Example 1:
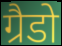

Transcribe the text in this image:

ग्रैडो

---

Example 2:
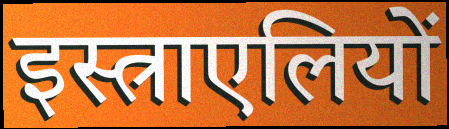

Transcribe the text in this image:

इस्त्राएलियों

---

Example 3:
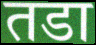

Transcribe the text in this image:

तडा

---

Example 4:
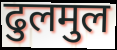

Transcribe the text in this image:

ढुलमुल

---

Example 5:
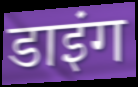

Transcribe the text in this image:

डाइंग